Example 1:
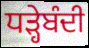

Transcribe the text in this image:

ਧੜ੍ਹੇਬੰਦੀ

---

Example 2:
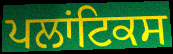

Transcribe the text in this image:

ਪਲਾਂਟਿਕਸ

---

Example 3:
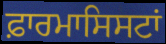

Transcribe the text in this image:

ਫ਼ਾਰਮਾਸਿਸਟਾਂ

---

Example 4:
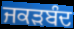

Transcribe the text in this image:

ਜਕੜਬੰਦ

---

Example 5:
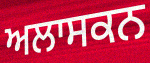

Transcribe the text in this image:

ਅਲਾਸਕਨ